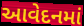
આવેદનમાં